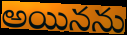
అయినను